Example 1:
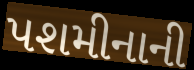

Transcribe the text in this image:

પશમીનાની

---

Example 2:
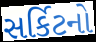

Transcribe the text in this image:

સર્કિટનો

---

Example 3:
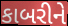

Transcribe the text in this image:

કાબરીને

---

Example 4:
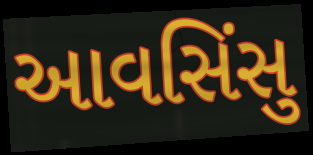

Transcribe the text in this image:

આવસિંસુ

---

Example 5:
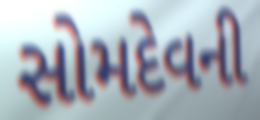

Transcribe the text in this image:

સોમદેવની